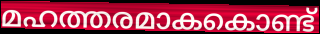
മഹത്തരമാകകൊണ്ട്